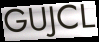
GUJCL